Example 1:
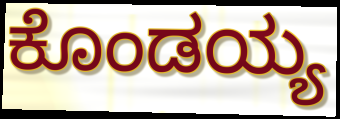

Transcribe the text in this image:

ಕೊಂಡಯ್ಯ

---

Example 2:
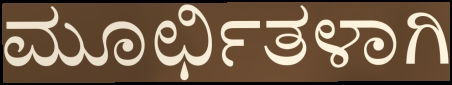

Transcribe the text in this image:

ಮೂರ್ಛಿತಳಾಗಿ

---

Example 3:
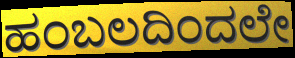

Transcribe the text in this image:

ಹಂಬಲದಿಂದಲೇ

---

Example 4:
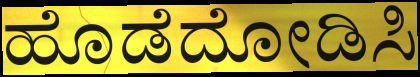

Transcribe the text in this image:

ಹೊಡೆದೋಡಿಸಿ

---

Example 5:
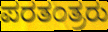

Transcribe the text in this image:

ಪರತಂತ್ರರು